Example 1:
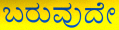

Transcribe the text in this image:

ಬರುವುದೇ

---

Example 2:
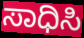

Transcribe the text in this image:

ಸಾಧಿಸಿ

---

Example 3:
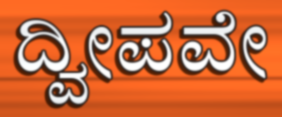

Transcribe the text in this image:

ದ್ವೀಪವೇ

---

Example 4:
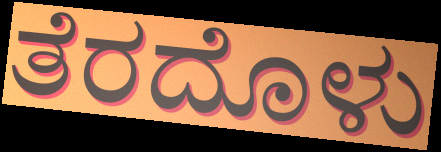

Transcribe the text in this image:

ತೆರದೊಳು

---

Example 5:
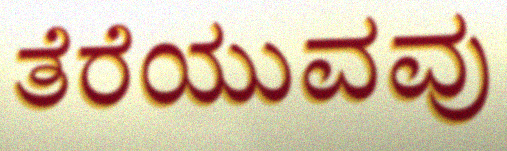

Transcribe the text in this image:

ತೆರೆಯುವವು